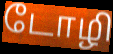
டோழி